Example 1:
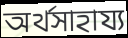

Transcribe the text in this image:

অর্থসাহায্য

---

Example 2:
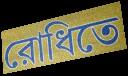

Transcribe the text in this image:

রোধিতে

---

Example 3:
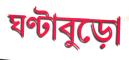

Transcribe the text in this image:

ঘণ্টাবুড়ো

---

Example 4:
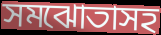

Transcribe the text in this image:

সমঝোতাসহ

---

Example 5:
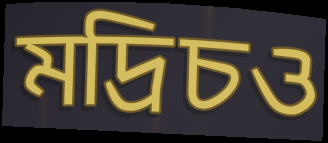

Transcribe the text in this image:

মদ্রিচও